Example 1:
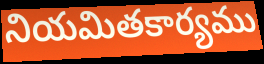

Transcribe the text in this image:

నియమితకార్యము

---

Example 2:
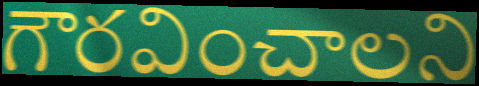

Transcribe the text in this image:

గౌరవించాలని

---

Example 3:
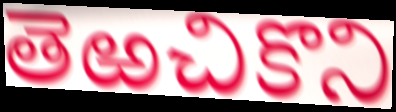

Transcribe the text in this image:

తెఱచికొని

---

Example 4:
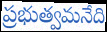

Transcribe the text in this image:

ప్రభుత్వమనేది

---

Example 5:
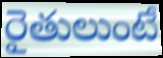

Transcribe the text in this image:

రైతులుంటే